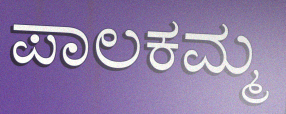
ಪಾಲಕಮ್ಮ